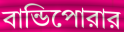
বান্ডিপোরার